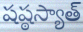
షష్ఠస్యాత్